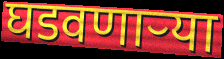
घडवणाऱ्या